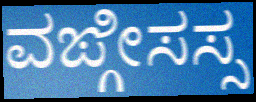
ವಙ್ಗೀಸಸ್ಸ